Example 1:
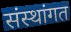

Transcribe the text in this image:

संस्थांगत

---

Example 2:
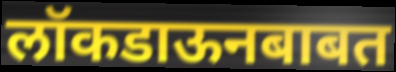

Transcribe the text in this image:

लॉकडाऊनबाबत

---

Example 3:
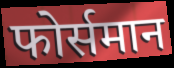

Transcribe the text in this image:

फोर्समान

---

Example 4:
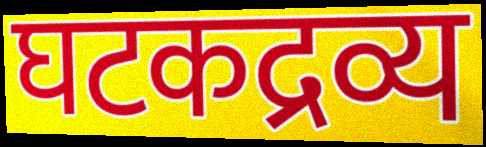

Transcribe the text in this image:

घटकद्रव्य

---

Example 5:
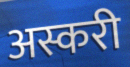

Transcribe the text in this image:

अस्करी